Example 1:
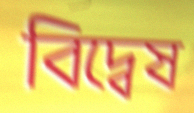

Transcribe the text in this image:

বিদ্বেষ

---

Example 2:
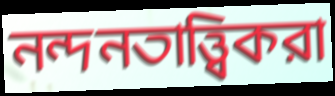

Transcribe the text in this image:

নন্দনতাত্ত্বিকরা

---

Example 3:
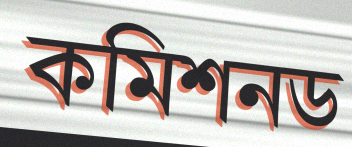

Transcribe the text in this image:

কমিশনড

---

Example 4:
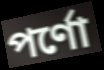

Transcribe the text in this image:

পর্ণো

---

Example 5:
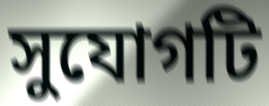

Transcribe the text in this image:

সুযোগটি